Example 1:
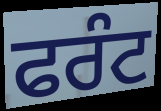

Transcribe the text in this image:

ਫਰੰਟ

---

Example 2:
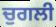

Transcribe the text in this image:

ਚੁਗਲੀ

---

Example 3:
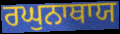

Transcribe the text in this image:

ਰਘੁਨਾਥਾਯ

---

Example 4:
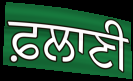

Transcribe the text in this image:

ਫ਼ਲਾਣੀ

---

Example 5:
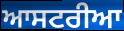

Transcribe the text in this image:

ਆਸਟਰੀਆ